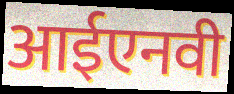
आईएनवी